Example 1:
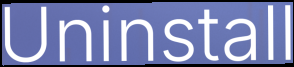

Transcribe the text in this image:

Uninstall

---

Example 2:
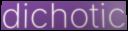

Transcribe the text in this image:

dichotic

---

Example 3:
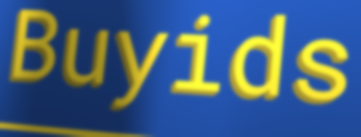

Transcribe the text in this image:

Buyids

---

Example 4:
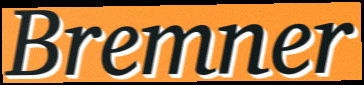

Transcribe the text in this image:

Bremner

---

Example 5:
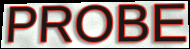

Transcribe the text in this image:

PROBE